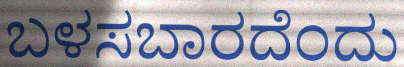
ಬಳಸಬಾರದೆಂದು